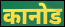
कानोड